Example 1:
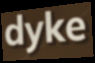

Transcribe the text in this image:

dyke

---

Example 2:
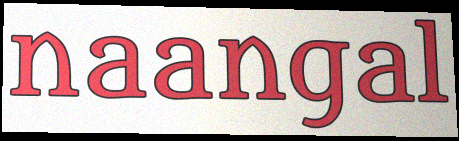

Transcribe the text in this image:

naangal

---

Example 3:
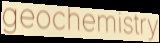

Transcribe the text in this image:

geochemistry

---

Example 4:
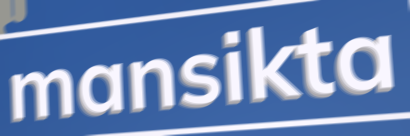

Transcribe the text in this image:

mansikta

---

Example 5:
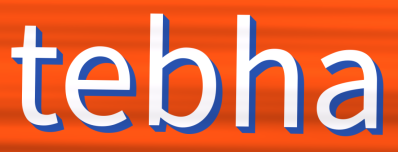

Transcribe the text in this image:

tebha